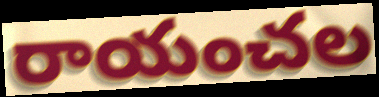
రాయంచల